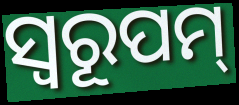
ସ୍ଵରୂପମ୍